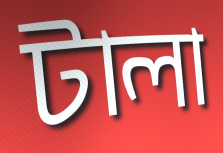
টালা